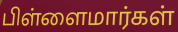
பிள்ளைமார்கள்